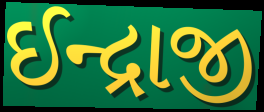
ઈન્દ્રાજી